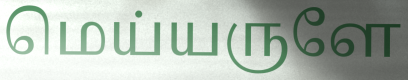
மெய்யருளே